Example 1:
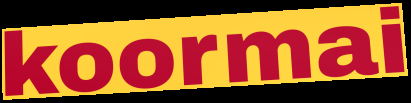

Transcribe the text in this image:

koormai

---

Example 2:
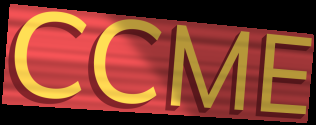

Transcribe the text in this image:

CCME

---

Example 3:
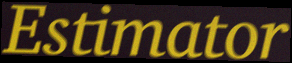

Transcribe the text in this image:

Estimator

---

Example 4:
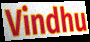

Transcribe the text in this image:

Vindhu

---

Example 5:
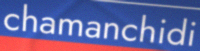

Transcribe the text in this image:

chamanchidi